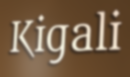
Kigali